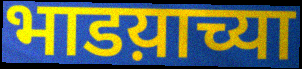
भाडय़ाच्या